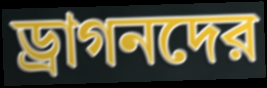
ড্রাগনদের